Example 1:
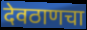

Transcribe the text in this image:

देवठाणचा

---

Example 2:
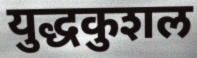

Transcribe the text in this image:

युद्धकुशल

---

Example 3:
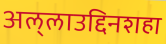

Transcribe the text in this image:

अल्लाउद्दिनशहा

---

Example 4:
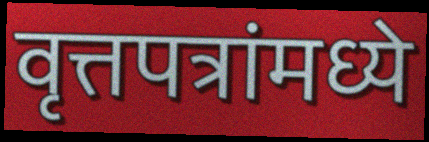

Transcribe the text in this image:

वृत्तपत्रांमध्ये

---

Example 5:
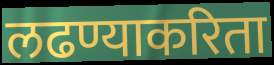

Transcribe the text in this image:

लढण्याकरिता